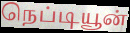
நெப்டியூன்